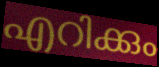
എറിക്കും